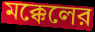
মক্কেলের